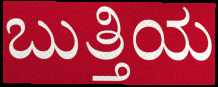
ಬುತ್ತಿಯ